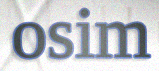
osim